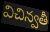
విచిన్వతీ